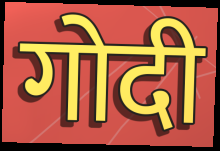
गोदी